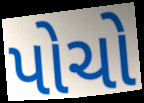
પોચો